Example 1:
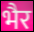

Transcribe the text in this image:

भैर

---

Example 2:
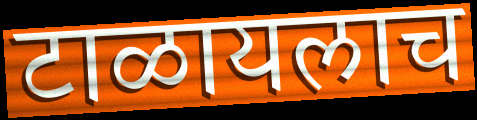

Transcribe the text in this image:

टाळायलाच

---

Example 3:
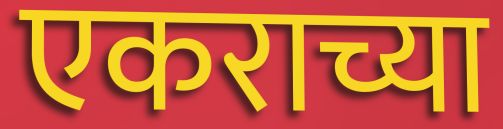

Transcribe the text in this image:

एकराच्या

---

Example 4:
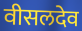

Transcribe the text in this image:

वीसलदेव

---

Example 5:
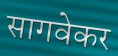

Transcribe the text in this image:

सागवेकर